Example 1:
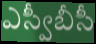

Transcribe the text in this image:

ఎస్వీబీసీ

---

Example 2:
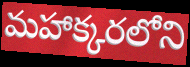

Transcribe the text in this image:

మహాక్కరలోని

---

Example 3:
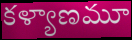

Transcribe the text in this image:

కళ్యాణమూ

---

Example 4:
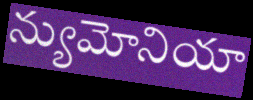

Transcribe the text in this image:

న్యుమోనియా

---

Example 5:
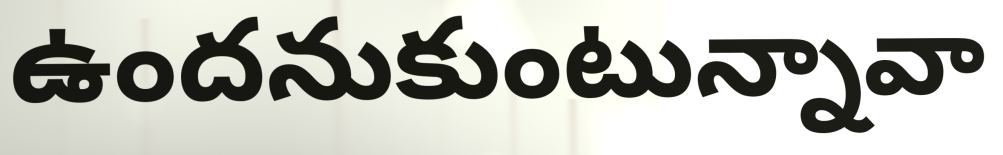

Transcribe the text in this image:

ఉందనుకుంటున్నావా